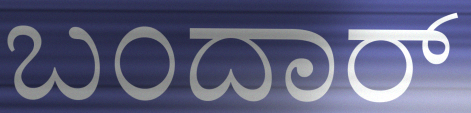
ಬಂದಾರ್